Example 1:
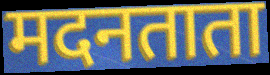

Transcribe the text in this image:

मदनताता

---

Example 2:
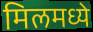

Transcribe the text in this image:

मिलमध्ये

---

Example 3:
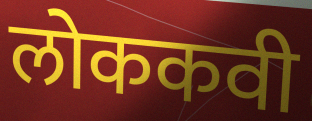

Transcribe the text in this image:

लोककवी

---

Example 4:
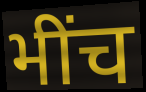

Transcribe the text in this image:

भींच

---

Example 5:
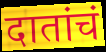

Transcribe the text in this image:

दातांचं